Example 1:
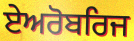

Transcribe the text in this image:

ਏਅਰੋਬਰਿਜ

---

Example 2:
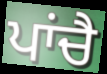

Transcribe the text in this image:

ਪਾਂਚੈ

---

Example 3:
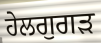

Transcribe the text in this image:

ਹੇਲਗੁਗੜ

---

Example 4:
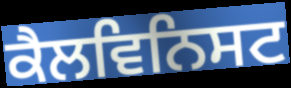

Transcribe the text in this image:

ਕੈਲਵਿਨਿਸਟ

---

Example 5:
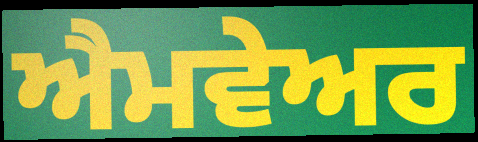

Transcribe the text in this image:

ਐਮਵੇਅਰ